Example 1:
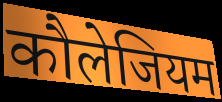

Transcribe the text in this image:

कौलेजियम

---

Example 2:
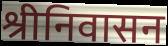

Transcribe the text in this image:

श्रीनिवासन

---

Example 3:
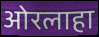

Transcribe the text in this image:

ओरलाहा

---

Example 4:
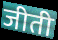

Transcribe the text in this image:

जीती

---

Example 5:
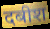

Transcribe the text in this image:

दबीश